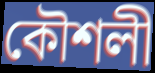
কৌশলী